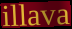
illava